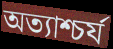
অত্যাশ্চর্য